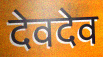
देवदेव